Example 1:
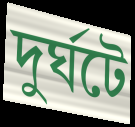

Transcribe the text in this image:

দুর্ঘটে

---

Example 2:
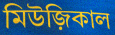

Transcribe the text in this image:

মিউজ়িকাল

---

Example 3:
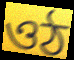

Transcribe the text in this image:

ওঠ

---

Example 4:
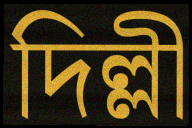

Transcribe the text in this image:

দিল্লী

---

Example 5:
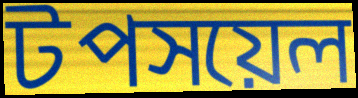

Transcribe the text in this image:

টপসয়েল